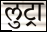
लुट्रा